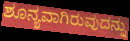
ಶೂನ್ಯವಾಗಿರುವುದನ್ನು